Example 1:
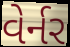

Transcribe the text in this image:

વેર્નર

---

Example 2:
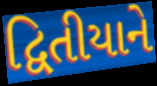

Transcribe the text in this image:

દ્વિતીયાને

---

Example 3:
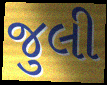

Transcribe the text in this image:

જુલી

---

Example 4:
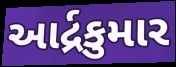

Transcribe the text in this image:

આર્દ્રકુમાર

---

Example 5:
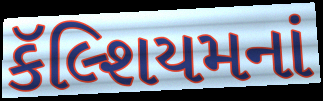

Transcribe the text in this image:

કૅલ્શિયમનાં